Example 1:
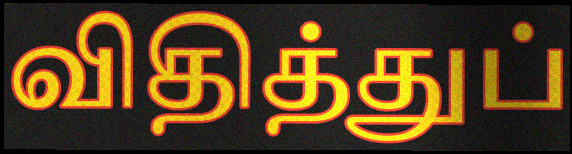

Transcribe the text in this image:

விதித்துப்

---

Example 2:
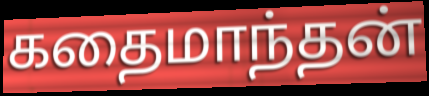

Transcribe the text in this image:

கதைமாந்தன்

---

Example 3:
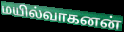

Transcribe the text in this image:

மயில்வாகனன்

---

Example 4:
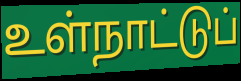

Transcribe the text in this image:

உள்நாட்டுப்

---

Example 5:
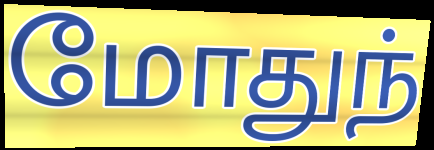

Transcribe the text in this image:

மோதுந்